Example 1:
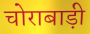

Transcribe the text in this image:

चोराबाड़ी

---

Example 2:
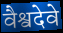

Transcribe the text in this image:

वैश्वदेवे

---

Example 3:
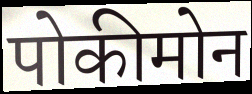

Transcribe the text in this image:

पोकीमोन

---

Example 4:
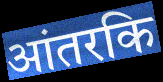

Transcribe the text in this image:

आंतरकि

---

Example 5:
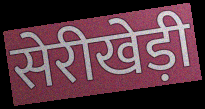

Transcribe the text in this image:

सेरीखेड़ी